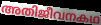
അതിജീവനകഥ